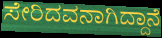
ಸೇರಿದವನಾಗಿದ್ದಾನೆ